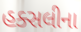
હક્સલીના